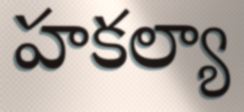
హకల్యా